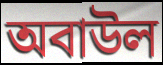
অবাউল